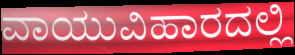
ವಾಯುವಿಹಾರದಲ್ಲಿ